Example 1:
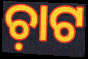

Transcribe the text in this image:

ଚ଼ାଟ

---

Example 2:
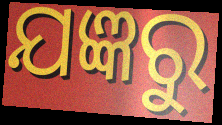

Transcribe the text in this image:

ଯଜ୍ଞରୁ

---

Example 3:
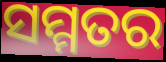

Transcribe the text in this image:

ସମ୍ମତର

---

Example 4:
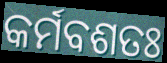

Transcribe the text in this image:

କର୍ମବଶତଃ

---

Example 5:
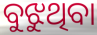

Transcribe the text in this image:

ବୁଝୁଥିବା